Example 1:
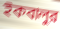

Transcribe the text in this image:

ইকবালুর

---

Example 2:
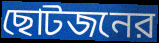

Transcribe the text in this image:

ছোটজনের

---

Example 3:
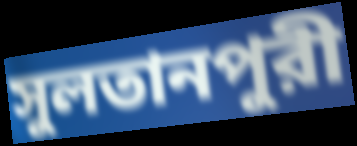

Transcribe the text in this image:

সুলতানপুরী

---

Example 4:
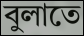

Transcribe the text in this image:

বুলাতে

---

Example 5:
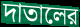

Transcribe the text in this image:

দাতালের